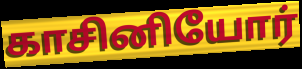
காசினியோர்